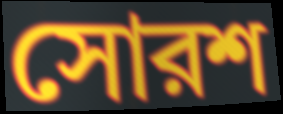
সোরশ